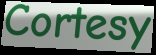
Cortesy